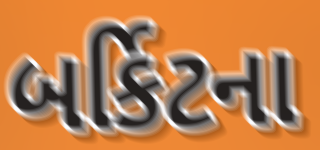
બર્કિટના